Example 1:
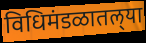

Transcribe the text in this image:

विधिमंडळातल्या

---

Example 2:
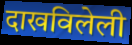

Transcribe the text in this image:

दाखविलेली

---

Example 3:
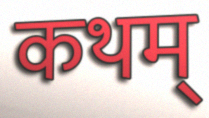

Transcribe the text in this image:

कथम्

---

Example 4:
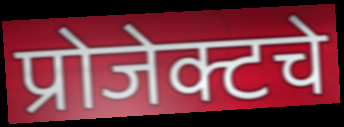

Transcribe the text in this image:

प्रोजेक्टचे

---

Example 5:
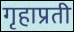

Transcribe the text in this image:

गृहाप्रती